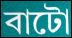
বাটো